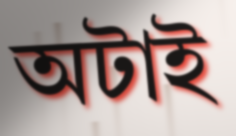
অটাই